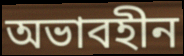
অভাবহীন